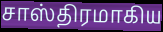
சாஸ்திரமாகிய